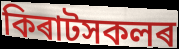
কিৰাটসকলৰ